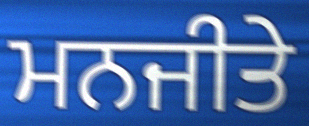
ਮਨਜੀਤੇ